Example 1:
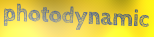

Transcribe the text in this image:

photodynamic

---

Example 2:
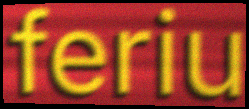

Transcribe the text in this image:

feriu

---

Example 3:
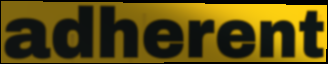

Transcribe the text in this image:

adherent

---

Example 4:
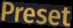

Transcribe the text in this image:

Preset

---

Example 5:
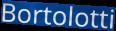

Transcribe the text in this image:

Bortolotti